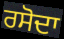
ਰਸੋਦਾ